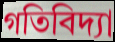
গতিবিদ্যা